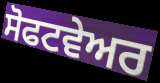
ਸੋਫਟਵੇਅਰ